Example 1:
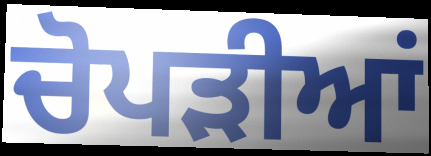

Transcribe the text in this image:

ਚੋਪੜੀਆਂ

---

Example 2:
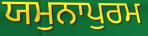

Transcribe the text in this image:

ਯਮੁਨਾਪੁਰਮ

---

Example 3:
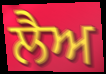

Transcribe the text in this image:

ਲੈਅ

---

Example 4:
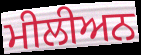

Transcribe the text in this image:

ਮੀਲੀਅਨ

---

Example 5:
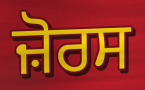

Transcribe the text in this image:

ਜ਼ੋਰਸ